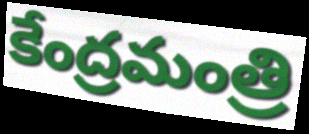
కేంద్రమంత్రి